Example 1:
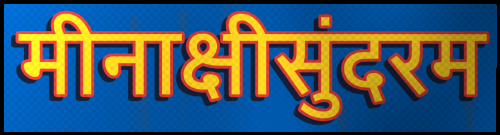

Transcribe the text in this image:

मीनाक्षीसुंदरम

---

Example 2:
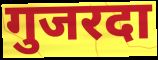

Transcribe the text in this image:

गुजरदा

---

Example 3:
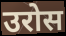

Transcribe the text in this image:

उरोस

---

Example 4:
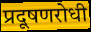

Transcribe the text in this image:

प्रदूषणरोधी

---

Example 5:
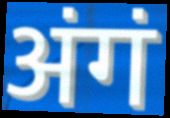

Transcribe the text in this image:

अंगं